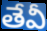
తేవీ